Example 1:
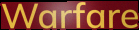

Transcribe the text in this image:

Warfare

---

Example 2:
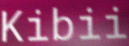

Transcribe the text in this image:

Kibii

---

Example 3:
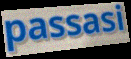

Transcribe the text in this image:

passasi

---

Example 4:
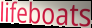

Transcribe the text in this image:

lifeboats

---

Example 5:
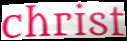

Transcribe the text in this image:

christ